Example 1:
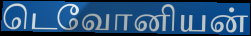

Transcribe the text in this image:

டெவோனியன்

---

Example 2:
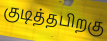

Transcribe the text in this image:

குடித்தபிறகு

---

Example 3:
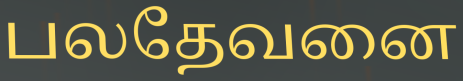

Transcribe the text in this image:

பலதேவனை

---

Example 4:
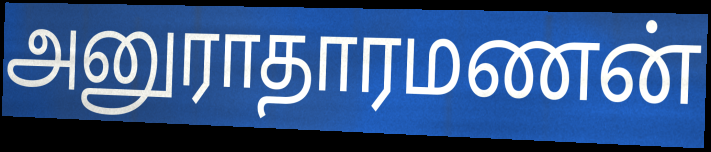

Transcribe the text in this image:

அனுராதாரமணன்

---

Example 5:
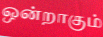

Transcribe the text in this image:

ஒன்றாகும்